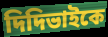
দিদিভাইকে